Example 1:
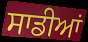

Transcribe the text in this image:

ਸਾਡੀਆਂ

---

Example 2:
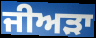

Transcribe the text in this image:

ਜੀਅੜਾ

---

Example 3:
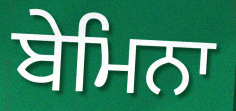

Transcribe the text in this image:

ਬੇਮਿਨਾ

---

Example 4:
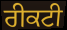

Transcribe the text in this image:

ਰੀਕਟੀ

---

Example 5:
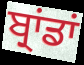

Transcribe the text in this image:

ਬ੍ਰਾਂਡਾਂ